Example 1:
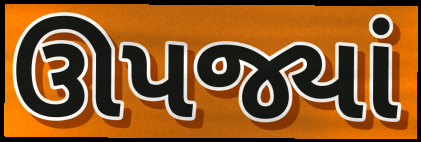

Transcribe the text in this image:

ઊપજ્યાં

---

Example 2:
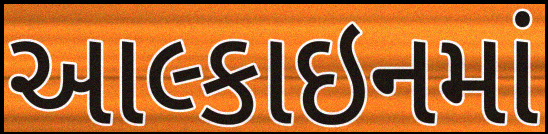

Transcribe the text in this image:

આલ્કાઇનમાં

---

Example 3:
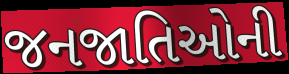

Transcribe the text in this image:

જનજાતિઓની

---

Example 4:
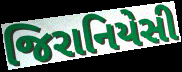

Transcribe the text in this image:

જિરાનિયેસી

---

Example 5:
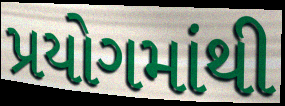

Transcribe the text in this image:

પ્રયોગમાંથી